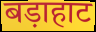
बड़ाहाट